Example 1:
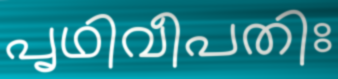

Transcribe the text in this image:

പൃഥിവീപതിഃ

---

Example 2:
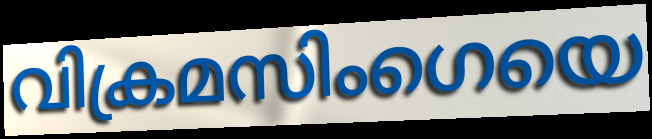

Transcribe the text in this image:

വിക്രമസിംഗെയെ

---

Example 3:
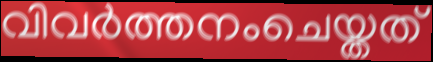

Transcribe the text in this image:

വിവർത്തനംചെയ്തത്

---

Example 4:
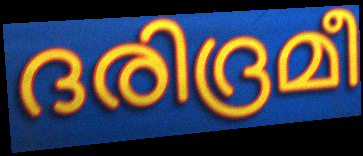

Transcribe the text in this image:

ദരിദ്രമീ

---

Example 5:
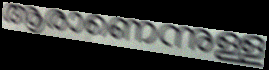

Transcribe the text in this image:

ആരാണെന്നുള്ള